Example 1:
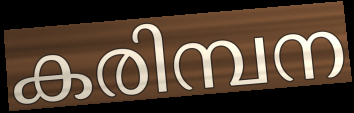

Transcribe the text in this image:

കരിമ്പന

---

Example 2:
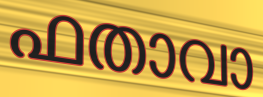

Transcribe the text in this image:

ഫതാവാ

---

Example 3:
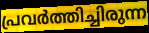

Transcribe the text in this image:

പ്രവർത്തിച്ചിരുന്ന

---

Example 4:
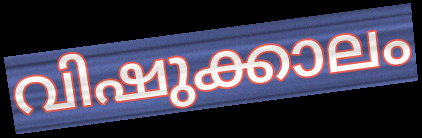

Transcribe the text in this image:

വിഷുക്കാലം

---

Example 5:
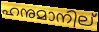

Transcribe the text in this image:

ഹനുമാനില്